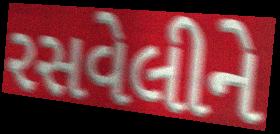
રસવેલીને